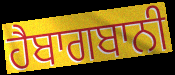
ਹੈਬਾਗਬਾਨੀ